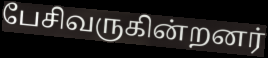
பேசிவருகின்றனர்